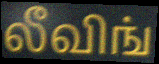
லீவிங்